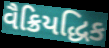
વૈક્રિયદ્ધિક